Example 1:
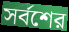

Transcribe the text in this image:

সর্বশের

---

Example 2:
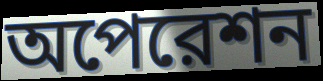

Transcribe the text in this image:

অপেরেশন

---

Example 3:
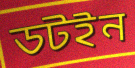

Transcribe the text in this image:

ডটইন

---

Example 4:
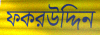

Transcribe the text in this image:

ফকরউদ্দিন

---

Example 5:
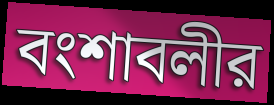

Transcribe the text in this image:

বংশাবলীর